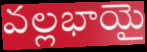
వల్లభాయై